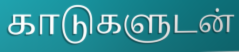
காடுகளுடன்